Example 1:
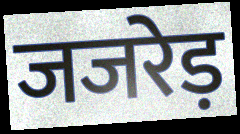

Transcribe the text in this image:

जजरेड़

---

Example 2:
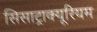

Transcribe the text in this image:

सिसाट्राक्यूरियम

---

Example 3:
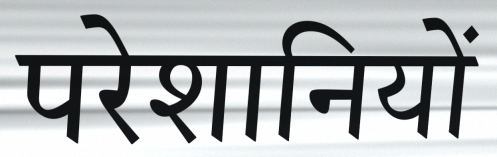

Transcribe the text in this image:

परेशानियों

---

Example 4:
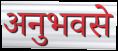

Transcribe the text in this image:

अनुभवसे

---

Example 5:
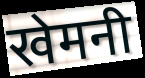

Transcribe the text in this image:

खेमनी